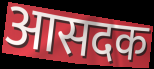
आसदक